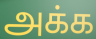
அக்க